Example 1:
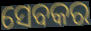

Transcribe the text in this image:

ସେବକର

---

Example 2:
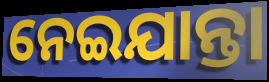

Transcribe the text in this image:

ନେଇଯାନ୍ତା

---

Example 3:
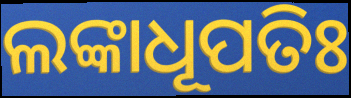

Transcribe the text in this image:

ଲଙ୍କାଧୂପତିଃ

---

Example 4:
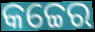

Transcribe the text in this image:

କଚ୍ଚେର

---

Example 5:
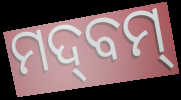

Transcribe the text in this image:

ମଦ୍‌ବମ୍